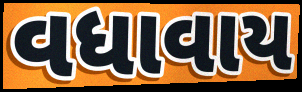
વધાવાય